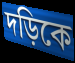
দড়িকে